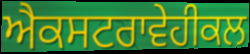
ਐਕਸਟਰਾਵੇਹੀਕਲ